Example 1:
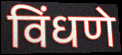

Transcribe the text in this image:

विंधणे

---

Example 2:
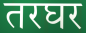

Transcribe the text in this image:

तरघर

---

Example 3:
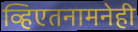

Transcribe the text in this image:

व्हिएतनामनेही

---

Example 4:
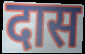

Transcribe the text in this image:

दास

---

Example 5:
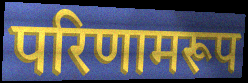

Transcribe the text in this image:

परिणामरूप